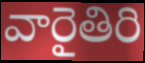
వారైతిరి